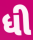
ધી